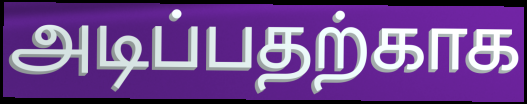
அடிப்பதற்காக